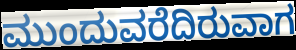
ಮುಂದುವರೆದಿರುವಾಗ